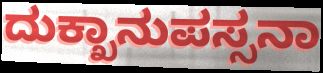
ದುಕ್ಖಾನುಪಸ್ಸನಾ